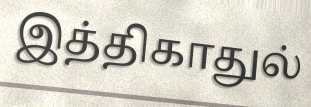
இத்திகாதுல்